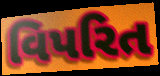
વિપરિત